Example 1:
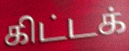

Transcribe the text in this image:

கிட்டக்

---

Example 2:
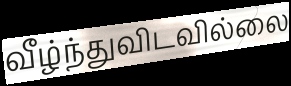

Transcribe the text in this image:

வீழ்ந்துவிடவில்லை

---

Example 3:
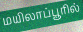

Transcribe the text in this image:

மயிலாப்பூரில்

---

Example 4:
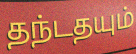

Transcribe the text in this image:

தந்டதயும்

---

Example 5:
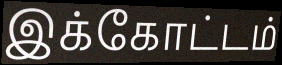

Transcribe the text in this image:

இக்கோட்டம்